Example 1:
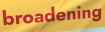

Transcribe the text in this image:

broadening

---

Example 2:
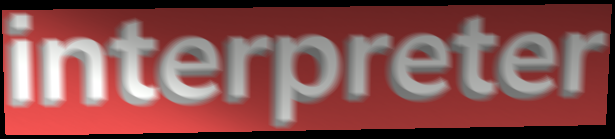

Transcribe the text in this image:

interpreter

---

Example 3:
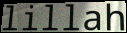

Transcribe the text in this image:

lillah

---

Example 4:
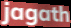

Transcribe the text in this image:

jagath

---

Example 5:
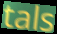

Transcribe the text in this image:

tals